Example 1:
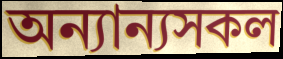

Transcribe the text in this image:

অন্যান্যসকল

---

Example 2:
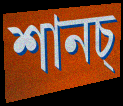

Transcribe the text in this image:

শানচ্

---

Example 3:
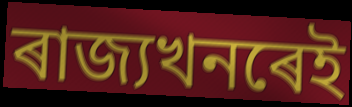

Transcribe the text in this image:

ৰাজ্যখনৰেই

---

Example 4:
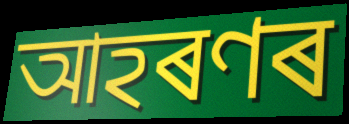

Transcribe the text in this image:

আহৰণৰ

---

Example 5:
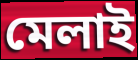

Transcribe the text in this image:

মেলাই